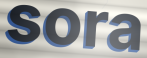
sora